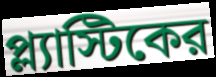
প্ল্যাস্টিকের